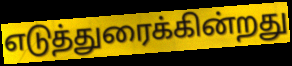
எடுத்துரைக்கின்றது